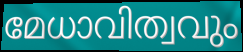
മേധാവിത്വവും